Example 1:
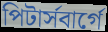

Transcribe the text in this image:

পিটার্সবার্গে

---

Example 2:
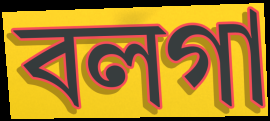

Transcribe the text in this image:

বলগা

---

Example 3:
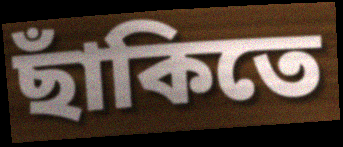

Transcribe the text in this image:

ছাঁকিতে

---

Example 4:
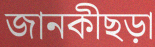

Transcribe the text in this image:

জানকীছড়া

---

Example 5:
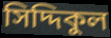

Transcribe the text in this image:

সিদ্দিকুল